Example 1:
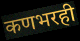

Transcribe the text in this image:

कणभरही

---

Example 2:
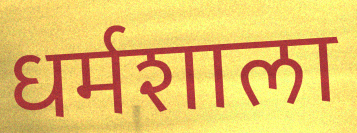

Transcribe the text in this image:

धर्मशाला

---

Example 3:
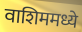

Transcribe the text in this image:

वाशिममध्ये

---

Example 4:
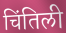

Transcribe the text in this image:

चिंतिली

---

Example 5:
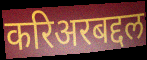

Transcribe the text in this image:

करिअरबद्दल